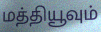
மத்தியூவும்